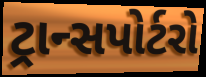
ટ્રાન્સપોર્ટરો